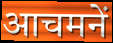
आचमनें